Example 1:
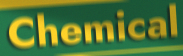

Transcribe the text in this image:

Chemical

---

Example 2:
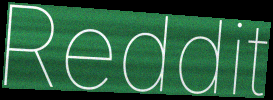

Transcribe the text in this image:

Reddit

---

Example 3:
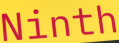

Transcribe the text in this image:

Ninth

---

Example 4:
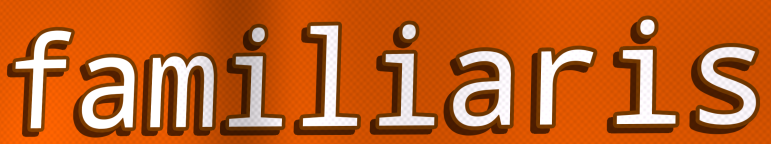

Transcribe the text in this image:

familiaris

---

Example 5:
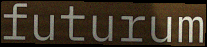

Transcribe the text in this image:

futurum